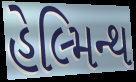
હેલ્મિન્થ